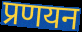
प्रणयन